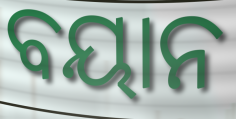
ବୟାନ